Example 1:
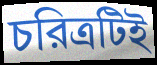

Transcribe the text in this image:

চরিত্রটিই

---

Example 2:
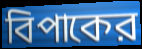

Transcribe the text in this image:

বিপাকের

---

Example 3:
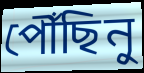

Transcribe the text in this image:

পৌঁছিনু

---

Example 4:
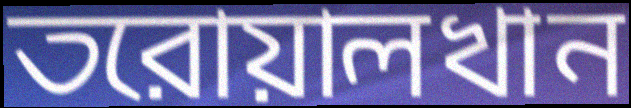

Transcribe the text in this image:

তরোয়ালখান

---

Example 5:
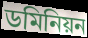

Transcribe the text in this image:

ডমিনিয়ন